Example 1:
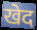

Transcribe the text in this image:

खेद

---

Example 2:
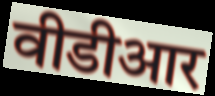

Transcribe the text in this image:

वीडीआर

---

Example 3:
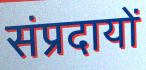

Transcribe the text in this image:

संप्रदायों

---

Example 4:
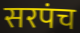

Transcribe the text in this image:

सरपंच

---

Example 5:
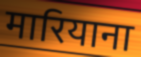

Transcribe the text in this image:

मारियाना